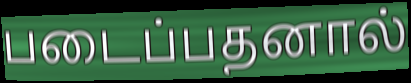
படைப்பதனால்